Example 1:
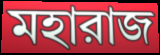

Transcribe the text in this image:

মহারাজ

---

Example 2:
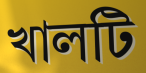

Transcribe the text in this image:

খালটি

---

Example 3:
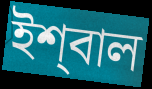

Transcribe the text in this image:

ইশ্‌বাল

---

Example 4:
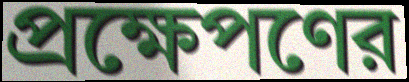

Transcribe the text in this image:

প্রক্ষেপণের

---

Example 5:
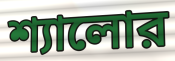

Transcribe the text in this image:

শ্যালোর